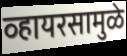
व्हायरसामुळे